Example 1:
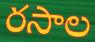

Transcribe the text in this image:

రసాల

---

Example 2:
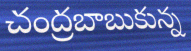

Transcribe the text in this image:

చంద్రబాబుకున్న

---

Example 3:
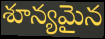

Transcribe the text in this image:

శూన్యమైన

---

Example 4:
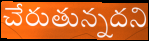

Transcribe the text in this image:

చేరుతున్నదని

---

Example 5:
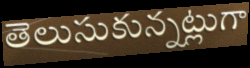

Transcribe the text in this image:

తెలుసుకున్నట్లుగా